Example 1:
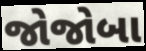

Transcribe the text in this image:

જોજોબા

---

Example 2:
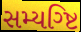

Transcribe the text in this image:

સમ્યગ્ષ્ટિ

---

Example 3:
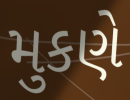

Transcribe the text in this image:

મુકણે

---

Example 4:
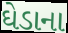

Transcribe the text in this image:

ઘેડાના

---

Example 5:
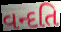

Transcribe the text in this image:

વન્દતિ